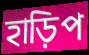
হাড়িপ